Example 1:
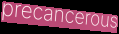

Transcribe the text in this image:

precancerous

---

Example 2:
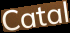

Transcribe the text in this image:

Catal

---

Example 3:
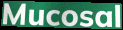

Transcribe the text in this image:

Mucosal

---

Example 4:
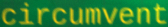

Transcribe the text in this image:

circumvent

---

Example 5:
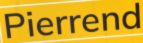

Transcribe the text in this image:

Pierrend